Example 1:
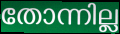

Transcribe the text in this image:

തോന്നില്ല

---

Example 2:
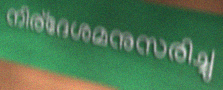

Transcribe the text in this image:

നിര്ദേശമനുസരിച്ചു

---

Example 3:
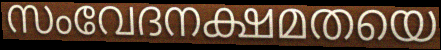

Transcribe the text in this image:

സംവേദനക്ഷമതയെ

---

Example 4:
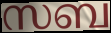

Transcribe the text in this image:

സബ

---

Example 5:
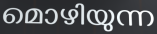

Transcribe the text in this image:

മൊഴിയുന്ന